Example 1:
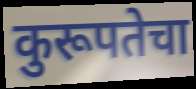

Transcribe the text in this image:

कुरूपतेचा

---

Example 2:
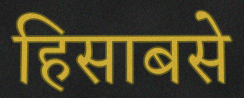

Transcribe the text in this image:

हिसाबसे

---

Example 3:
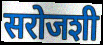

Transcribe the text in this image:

सरोजशी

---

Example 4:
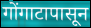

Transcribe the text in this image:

गोंगाटापासून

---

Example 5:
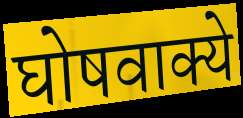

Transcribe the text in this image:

घोषवाक्ये